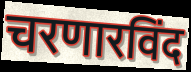
चरणारविंद